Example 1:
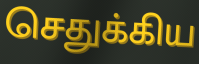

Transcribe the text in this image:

செதுக்கிய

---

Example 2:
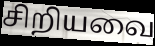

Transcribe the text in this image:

சிறியவை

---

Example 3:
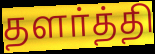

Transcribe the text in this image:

தளர்த்தி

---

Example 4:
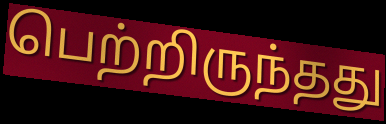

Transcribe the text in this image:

பெற்றிருந்தது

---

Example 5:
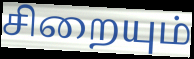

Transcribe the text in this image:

சிறையும்